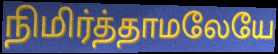
நிமிர்த்தாமலேயே